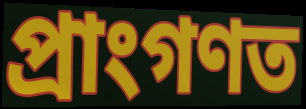
প্ৰাংগণত